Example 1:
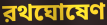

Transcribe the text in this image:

রথঘোষেণ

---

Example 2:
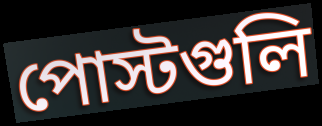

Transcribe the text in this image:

পোস্টগুলি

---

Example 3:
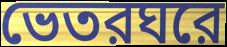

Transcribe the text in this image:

ভেতরঘরে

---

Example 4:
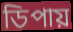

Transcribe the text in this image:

ডিপায়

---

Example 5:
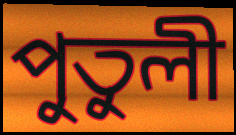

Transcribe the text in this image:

পুতুলী